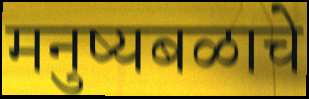
मनुष्यबळाचे